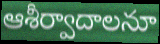
ఆశీర్వాదాలనూ